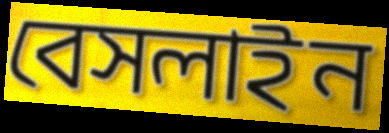
বেসলাইন